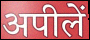
अपीलें